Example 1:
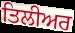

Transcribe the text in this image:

ਤਿਲੀਅਰ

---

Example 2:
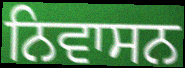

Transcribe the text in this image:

ਨਿਵਾਸਨ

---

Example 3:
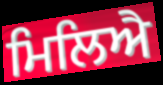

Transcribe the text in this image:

ਮਿਲਿਐ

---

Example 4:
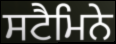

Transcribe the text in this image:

ਸਟੈਮਿਨੇ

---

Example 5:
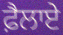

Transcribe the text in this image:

ਫ਼ੈਲਾਏ